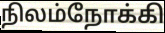
நிலம்நோக்கி